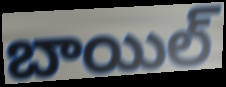
బాయిల్